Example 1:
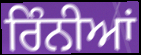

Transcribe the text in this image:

ਰਿੰਨੀਆਂ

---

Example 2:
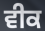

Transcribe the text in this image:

ਵੀਕ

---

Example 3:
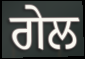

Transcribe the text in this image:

ਗੇਲ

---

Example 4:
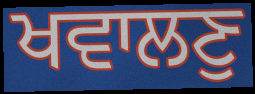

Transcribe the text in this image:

ਖਵਾਲਣੁ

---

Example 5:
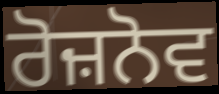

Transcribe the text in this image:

ਰੋਜ਼ਨੋਵ